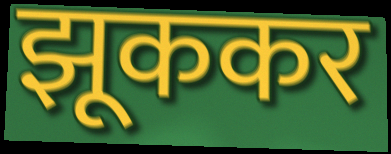
झूककर